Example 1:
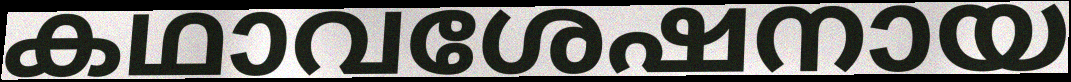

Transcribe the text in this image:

കഥാവശേഷനായ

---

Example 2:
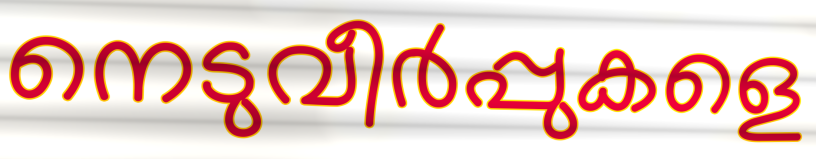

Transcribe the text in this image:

നെടുവീർപ്പുകളെ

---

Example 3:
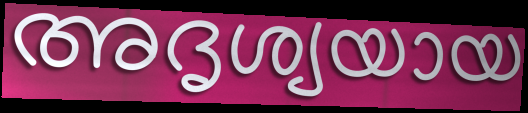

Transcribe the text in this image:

അദൃശ്യയായ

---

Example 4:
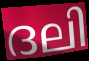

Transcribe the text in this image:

ദലി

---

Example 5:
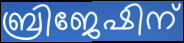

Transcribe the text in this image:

ബ്രിജേഷിന്